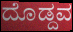
ದೊಡ್ದವ